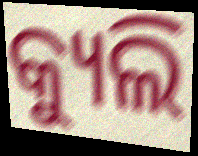
କ୍ୟୁଲି